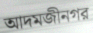
আদমজীনগর